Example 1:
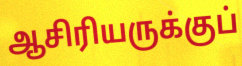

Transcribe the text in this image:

ஆசிரியருக்குப்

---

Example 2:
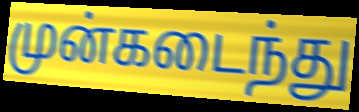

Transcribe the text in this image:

முன்கடைந்து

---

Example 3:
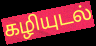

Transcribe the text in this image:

கழியுடல்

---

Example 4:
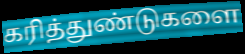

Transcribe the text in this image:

கரித்துண்டுகளை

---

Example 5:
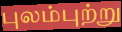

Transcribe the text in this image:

புலம்புற்று